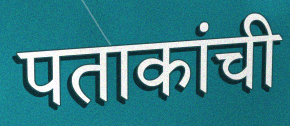
पताकांची